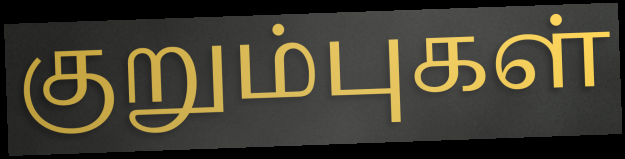
குறும்புகள்